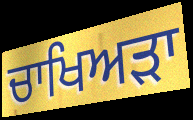
ਚਾਖਿਅੜਾ